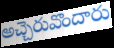
అచ్చెరువొందారు